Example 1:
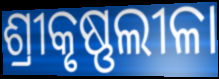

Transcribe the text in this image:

ଶ୍ରୀକୃଷ୍ଣଲୀଳା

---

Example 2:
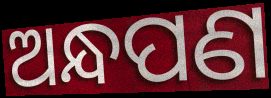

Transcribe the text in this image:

ଅନ୍ଧପଣ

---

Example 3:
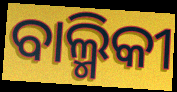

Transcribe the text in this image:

ବାଲ୍ମିକୀ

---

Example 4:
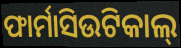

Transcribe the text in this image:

ଫାର୍ମାସିଉଟିକାଲ୍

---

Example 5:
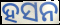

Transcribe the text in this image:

ହସନ